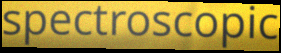
spectroscopic